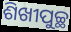
ଶିଖୀପୁଚ୍ଛ